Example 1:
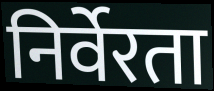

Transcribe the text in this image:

निर्वेरता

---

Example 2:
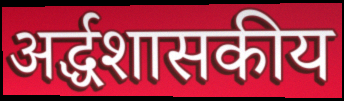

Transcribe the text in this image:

अर्द्धशासकीय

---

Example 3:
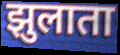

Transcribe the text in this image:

झुलाता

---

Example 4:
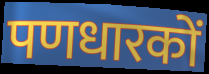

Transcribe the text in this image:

पणधारकों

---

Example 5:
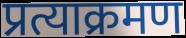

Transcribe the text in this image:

प्रत्याक्रमण